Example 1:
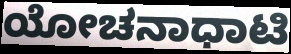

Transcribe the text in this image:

ಯೋಚನಾಧಾಟಿ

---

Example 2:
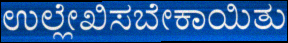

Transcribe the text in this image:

ಉಲ್ಲೇಖಿಸಬೇಕಾಯಿತು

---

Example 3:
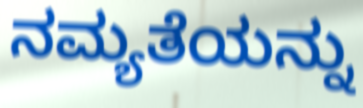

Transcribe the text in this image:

ನಮ್ಯತೆಯನ್ನು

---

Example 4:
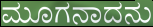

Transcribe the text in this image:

ಮೂಗನಾದನು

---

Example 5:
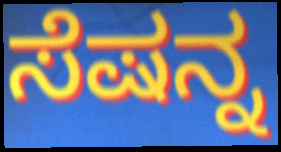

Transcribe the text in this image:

ಸೆಷನ್ನ